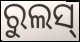
ରୁଲସ୍